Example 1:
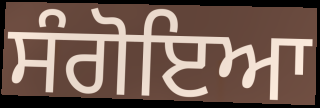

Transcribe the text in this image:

ਸੰਗੋਇਆ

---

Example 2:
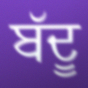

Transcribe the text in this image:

ਬੱਦੂ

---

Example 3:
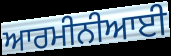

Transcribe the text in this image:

ਆਰਮੀਨੀਆਈ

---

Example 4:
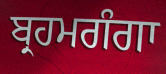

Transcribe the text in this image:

ਬ੍ਰਹਮਗੰਗਾ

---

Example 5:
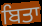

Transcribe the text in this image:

ਬਿਤਾ